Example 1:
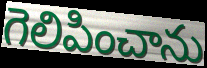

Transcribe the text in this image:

గెలిపించాను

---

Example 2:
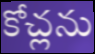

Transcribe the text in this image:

కోచ్లను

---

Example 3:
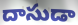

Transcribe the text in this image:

దాసుడా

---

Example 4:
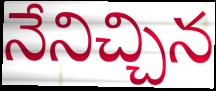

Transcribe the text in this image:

నేనిచ్చిన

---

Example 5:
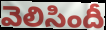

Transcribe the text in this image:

వెలిసిందీ